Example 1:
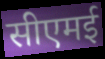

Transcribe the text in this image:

सीएमई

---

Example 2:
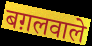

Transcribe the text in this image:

बग़लवाले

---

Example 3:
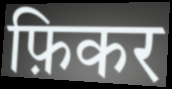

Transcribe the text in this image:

फ़िकर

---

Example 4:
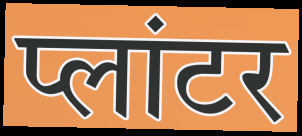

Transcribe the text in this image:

प्लांटर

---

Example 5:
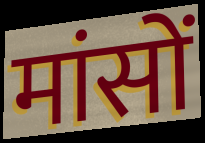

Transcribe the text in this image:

मांसों